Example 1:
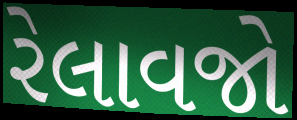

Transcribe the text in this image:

રેલાવજો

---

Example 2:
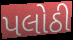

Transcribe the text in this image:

પલોઠી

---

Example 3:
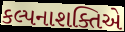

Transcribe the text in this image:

કલ્પનાશક્તિએ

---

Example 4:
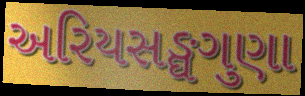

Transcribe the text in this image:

અરિયસઙ્ઘગુણા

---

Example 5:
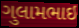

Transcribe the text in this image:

ગુલામભાઇ